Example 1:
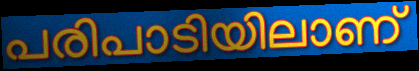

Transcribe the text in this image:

പരിപാടിയിലാണ്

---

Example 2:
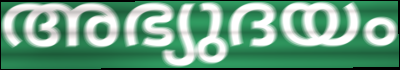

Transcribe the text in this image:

അഭ്യുദയം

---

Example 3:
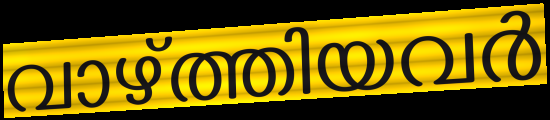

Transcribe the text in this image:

വാഴ്ത്തിയവർ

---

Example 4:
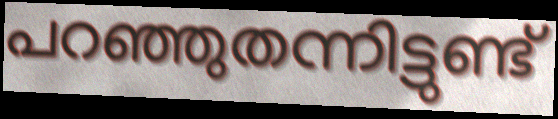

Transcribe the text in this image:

പറഞ്ഞുതന്നിട്ടുണ്ട്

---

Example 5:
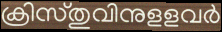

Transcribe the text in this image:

ക്രിസ്തുവിനുളളവർ